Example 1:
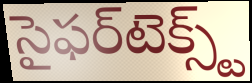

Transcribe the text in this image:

సైఫర్‌టెక్స్ట్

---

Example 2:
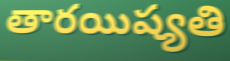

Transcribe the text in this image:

తారయిష్యతి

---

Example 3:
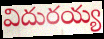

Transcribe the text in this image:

విదురయ్య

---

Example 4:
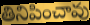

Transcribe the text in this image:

తినిపించావు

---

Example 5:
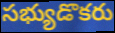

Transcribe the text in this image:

సభ్యుడొకరు